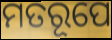
ମତରୂପେ